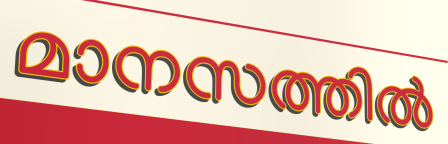
മാനസത്തിൽ